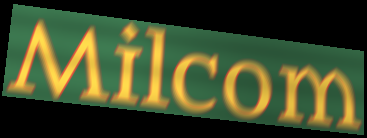
Milcom